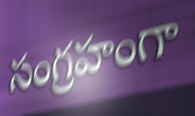
సంగ్రహంగా